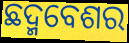
ଛଦ୍ମବେଶର